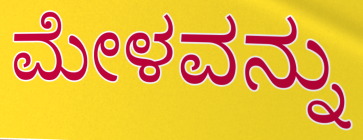
ಮೇಳವನ್ನು